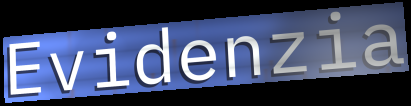
Evidenzia